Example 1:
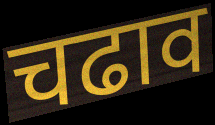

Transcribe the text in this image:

चढाव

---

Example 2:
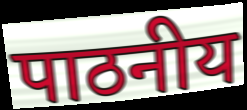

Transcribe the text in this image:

पाठनीय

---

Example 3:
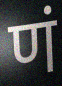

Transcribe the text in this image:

णं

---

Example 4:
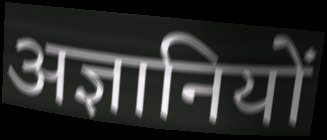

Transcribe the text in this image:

अज्ञानियों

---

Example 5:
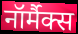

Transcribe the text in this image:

नॉर्मैक्स